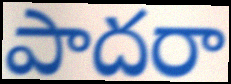
పాదరా